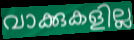
വാക്കുകളില്ല